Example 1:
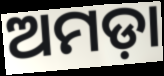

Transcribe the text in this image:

ଅମଡ଼ା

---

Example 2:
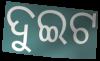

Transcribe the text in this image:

ଦୁଇଟ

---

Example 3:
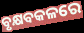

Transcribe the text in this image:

ବୃକ୍ଷବକଳରେ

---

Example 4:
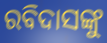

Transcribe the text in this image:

ରବିଦାସଙ୍କୁ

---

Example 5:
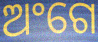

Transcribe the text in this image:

ଅଂଗେ